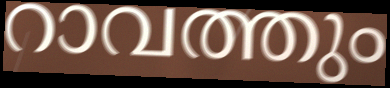
റാവത്തും